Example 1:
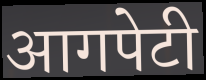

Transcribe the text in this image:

आगपेटी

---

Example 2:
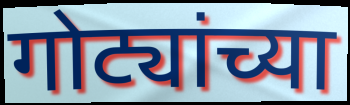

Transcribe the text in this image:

गोट्यांच्या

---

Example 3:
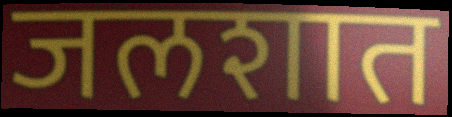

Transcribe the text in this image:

जलशात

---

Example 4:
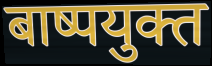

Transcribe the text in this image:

बाष्पयुक्त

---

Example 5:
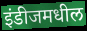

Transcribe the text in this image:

इंडीजमधील